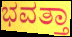
ಭವತ್ತಾ